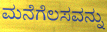
ಮನೆಗೆಲಸವನ್ನು